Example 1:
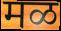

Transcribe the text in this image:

मळ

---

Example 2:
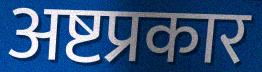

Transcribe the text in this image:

अष्टप्रकार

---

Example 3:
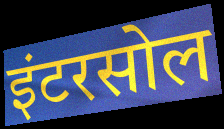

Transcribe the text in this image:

इंटरसोल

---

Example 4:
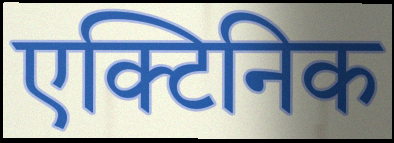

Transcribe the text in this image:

एक्टिनिक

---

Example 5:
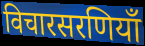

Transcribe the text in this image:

विचारसरणियाँ